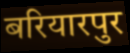
बरियारपुर